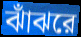
ঝাঁঝরে